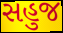
સહુજ